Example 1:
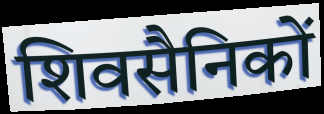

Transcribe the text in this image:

शिवसैनिकों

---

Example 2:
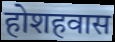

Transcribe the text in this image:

होशहवास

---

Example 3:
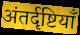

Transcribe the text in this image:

अंतर्दृष्टियाँ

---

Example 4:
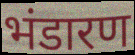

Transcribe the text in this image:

भंडारण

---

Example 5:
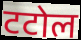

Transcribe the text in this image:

टटोल